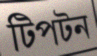
টিপটন